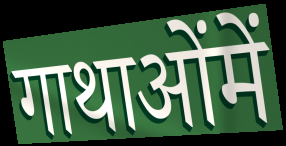
गाथाओंमें